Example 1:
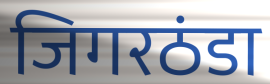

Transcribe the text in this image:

जिगरठंडा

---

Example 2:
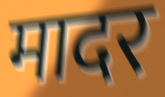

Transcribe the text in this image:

मादर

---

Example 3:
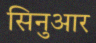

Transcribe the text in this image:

सिनुआर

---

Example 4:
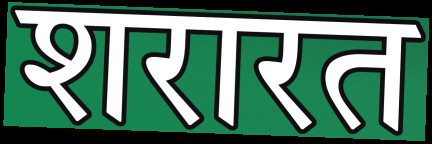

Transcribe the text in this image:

शरारत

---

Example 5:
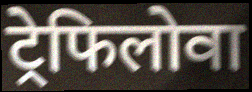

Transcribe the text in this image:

ट्रेफिलोवा